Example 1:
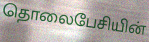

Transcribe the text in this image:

தொலைபேசியின்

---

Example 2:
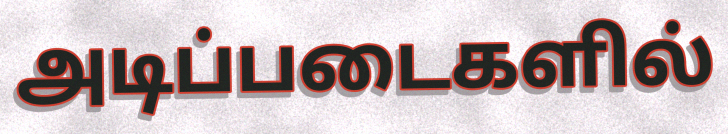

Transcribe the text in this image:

அடிப்படைகளில்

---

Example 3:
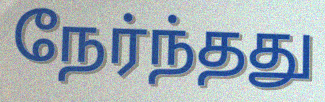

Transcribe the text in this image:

நேர்ந்தது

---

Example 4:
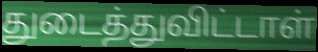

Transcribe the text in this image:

துடைத்துவிட்டாள்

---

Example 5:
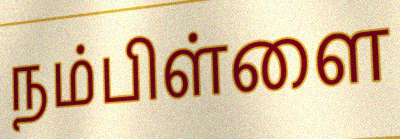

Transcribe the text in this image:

நம்பிள்ளை